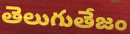
తెలుగుతేజం